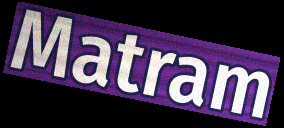
Matram